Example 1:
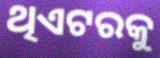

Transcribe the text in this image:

ଥିଏଟରକୁ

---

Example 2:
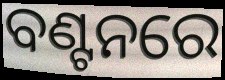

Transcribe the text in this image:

ବଣ୍ଟନରେ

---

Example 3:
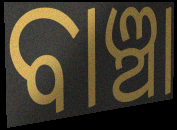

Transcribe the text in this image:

ବାଞ୍ଚା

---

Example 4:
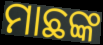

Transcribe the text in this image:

ମାଛଙ୍କ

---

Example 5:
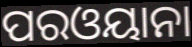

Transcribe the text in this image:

ପରଓୟାନା